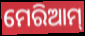
ମେରିଆମ୍